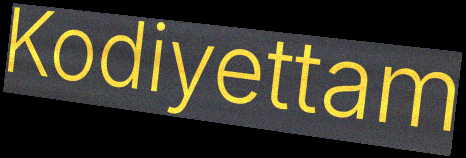
Kodiyettam